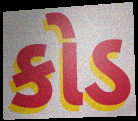
કોડ